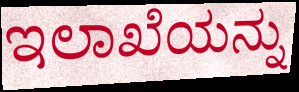
ಇಲಾಖೆಯನ್ನು